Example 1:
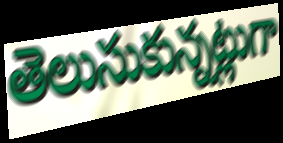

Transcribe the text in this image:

తెలుసుకున్నట్లుగా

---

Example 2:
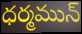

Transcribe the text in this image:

ధర్మమున్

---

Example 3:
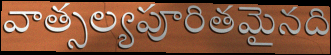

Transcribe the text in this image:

వాత్సల్యపూరితమైనది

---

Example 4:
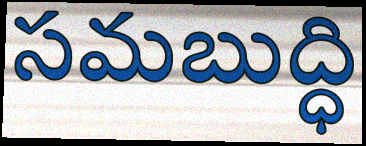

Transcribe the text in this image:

సమబుద్ధి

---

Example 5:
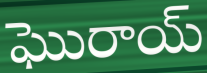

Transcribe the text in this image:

ఘొరాయ్